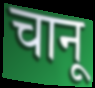
चानू